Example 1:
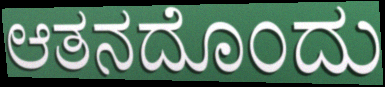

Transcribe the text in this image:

ಆತನದೊಂದು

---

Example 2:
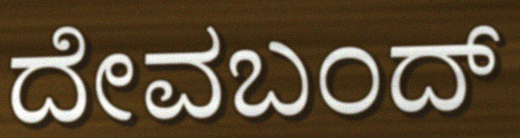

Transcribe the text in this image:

ದೇವಬಂದ್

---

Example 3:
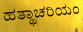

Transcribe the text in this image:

ಹತ್ಥಾಚರಿಯಂ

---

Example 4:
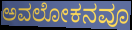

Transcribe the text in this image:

ಅವಲೋಕನವೂ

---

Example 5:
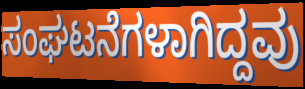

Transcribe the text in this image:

ಸಂಘಟನೆಗಳಾಗಿದ್ದವು